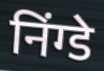
निंग्डे